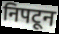
निपटून